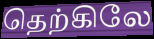
தெற்கிலே